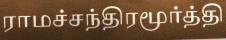
ராமச்சந்திரமூர்த்தி